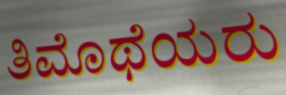
ತಿಮೊಥೆಯರು